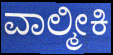
ವಾಲ್ಮೀಕಿ